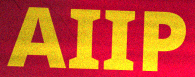
AIIP